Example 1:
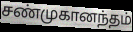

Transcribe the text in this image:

சண்முகானந்தம்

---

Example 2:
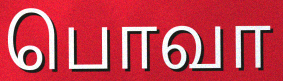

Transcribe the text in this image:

பொவா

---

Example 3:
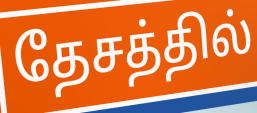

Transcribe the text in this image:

தேசத்தில்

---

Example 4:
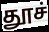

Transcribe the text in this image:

தூச்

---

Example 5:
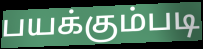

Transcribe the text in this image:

பயக்கும்படி